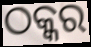
ଠକ୍କର